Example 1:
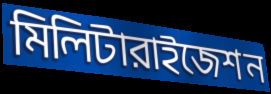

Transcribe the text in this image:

মিলিটারাইজেশন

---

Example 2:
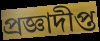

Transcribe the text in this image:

প্রজ্ঞাদীপ্ত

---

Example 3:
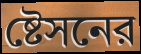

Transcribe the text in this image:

ষ্টেসনের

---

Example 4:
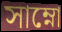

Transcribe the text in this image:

সাম্নো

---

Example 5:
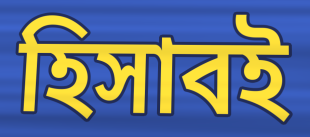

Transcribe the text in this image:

হিসাবই